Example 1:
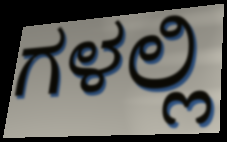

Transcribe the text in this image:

ಗಳಲ್ಲಿ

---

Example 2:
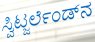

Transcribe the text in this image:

ಸ್ವಿಟ್ಜರ್ಲೆಂಡ್‌ನ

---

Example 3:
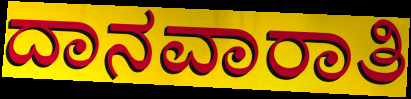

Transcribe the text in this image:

ದಾನವಾರಾತಿ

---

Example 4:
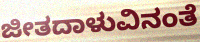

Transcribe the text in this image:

ಜೀತದಾಳುವಿನಂತೆ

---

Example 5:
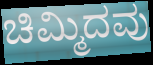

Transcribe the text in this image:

ಚಿಮ್ಮಿದವು